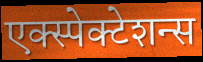
एक्स्पेक्टेशन्स